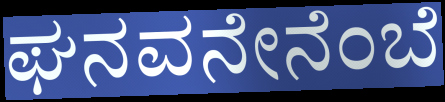
ಘನವನೇನೆಂಬೆ